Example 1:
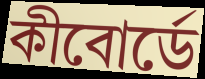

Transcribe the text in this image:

কীবোর্ডে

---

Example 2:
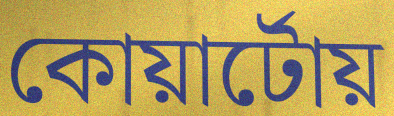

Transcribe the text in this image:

কোয়ার্টোয়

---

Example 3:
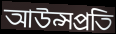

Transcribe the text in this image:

আউন্সপ্রতি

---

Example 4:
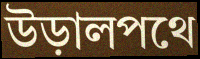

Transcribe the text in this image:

উড়ালপথে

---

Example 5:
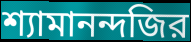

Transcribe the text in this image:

শ্যামানন্দজির